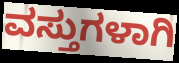
ವಸ್ತುಗಳಾಗಿ